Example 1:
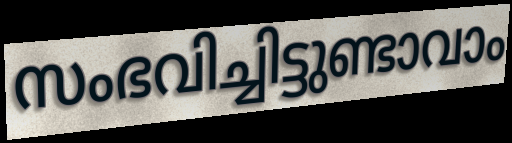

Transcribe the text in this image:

സംഭവിച്ചിട്ടുണ്ടാവാം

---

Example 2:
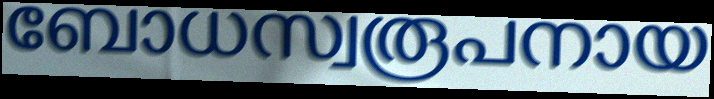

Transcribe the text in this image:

ബോധസ്വരൂപനായ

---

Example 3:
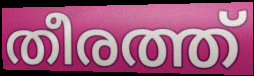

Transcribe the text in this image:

തീരത്ത്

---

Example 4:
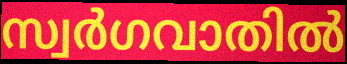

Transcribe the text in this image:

സ്വർഗവാതിൽ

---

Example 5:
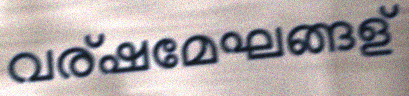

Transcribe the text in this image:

വര്ഷമേഘങ്ങള്